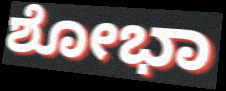
ಶೋಭಾ